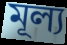
মূল্য়